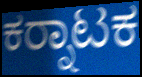
ಕರ‍್ನಾಟಕ